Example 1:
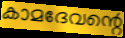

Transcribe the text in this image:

കാമദേവന്റെ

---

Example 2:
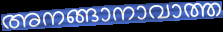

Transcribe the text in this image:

അനങ്ങാനാവാത്ത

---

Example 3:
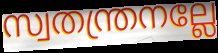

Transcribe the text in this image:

സ്വതന്ത്രനല്ലേ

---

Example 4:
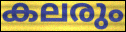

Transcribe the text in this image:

കലരും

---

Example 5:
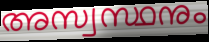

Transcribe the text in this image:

അസ്വസ്ഥനും